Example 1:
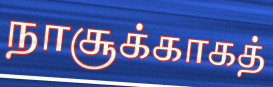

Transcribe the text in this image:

நாசூக்காகத்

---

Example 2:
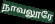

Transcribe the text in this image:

நாவலூரே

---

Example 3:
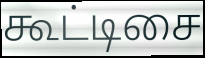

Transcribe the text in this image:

கூட்டிசை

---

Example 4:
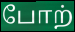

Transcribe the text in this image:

போற்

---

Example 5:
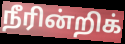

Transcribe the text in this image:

நீரின்றிக்